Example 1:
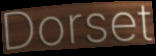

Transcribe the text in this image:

Dorset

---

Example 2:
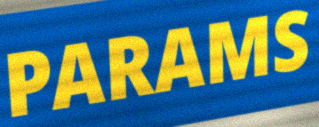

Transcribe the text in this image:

PARAMS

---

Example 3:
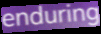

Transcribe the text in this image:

enduring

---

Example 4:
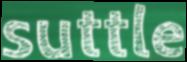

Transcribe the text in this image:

suttle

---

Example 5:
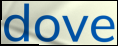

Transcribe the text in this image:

dove